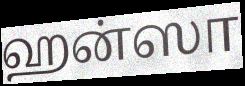
ஹன்ஸா